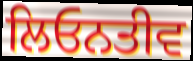
ਲਿਓਨਤੀਵ